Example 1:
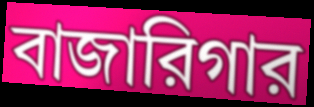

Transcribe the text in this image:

বাজারিগার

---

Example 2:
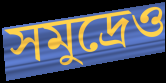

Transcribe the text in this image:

সমুদ্রেও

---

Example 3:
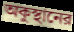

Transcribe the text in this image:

অকুস্থানের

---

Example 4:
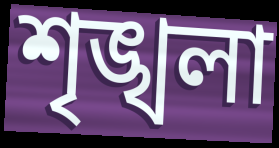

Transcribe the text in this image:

শৃঙ্খলা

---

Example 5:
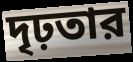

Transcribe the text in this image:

দৃঢ়তার